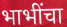
भाभींचा